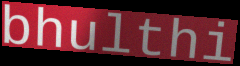
bhulthi